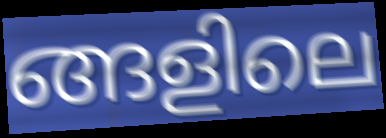
ങ്ങളിലെ